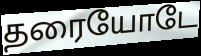
தரையோடே